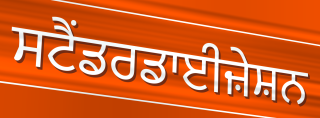
ਸਟੈਂਡਰਡਾਈਜ਼ੇਸ਼ਨ